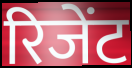
रिजेंट